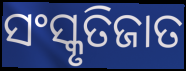
ସଂସ୍କୃତିଜାତ